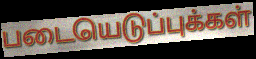
படையெடுப்புக்கள்